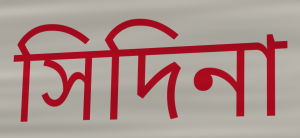
সিদিনা